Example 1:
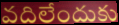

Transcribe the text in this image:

వదిలేందుకు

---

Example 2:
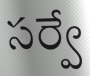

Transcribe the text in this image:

సర్వే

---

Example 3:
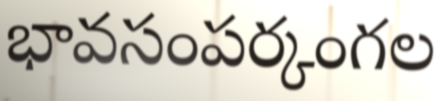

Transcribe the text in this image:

భావసంపర్కంగల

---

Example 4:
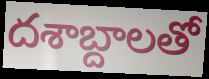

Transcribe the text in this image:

దశాబ్దాలతో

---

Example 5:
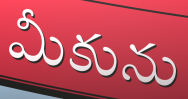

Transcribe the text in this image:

మీకును